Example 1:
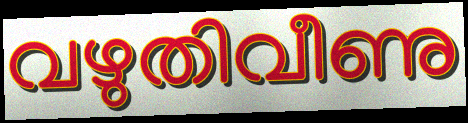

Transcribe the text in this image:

വഴുതിവീണു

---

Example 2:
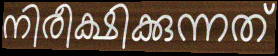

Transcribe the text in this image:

നിരീക്ഷിക്കുന്നത്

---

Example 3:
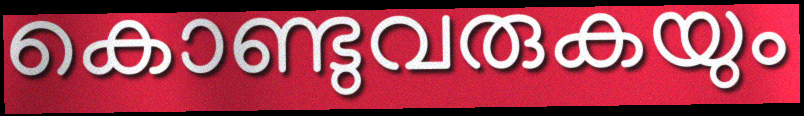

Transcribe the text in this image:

കൊണ്ടുവരുകയും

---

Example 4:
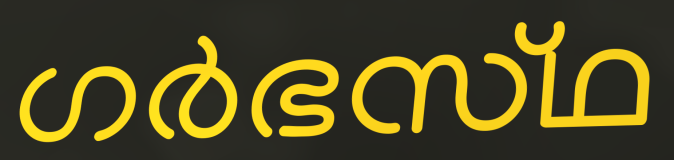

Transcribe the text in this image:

ഗർഭസ്‌ഥ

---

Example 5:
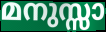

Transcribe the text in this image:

മനുസ്സാ